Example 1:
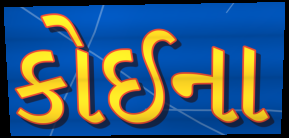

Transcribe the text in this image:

કોઈના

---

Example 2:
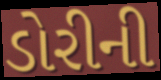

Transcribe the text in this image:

ડોરીની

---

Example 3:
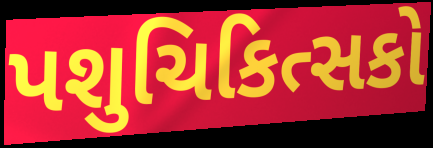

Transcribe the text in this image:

પશુચિકિત્સકો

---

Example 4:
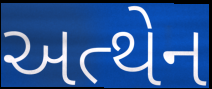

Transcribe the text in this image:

અત્થેન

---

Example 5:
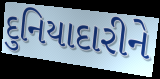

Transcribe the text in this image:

દુનિયાદારીને